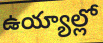
ఉయ్యాల్లో